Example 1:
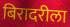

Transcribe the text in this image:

बिरादरीला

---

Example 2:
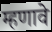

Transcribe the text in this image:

म्हणावे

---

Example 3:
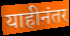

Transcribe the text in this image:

याहीनंतर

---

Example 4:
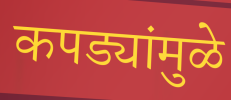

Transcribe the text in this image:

कपड्यांमुळे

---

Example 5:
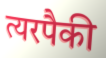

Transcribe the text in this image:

त्यरपैकी